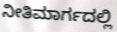
ನೀತಿಮಾರ್ಗದಲ್ಲಿ